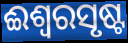
ଈଶ୍ୱରସୃଷ୍ଟ